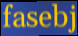
fasebj